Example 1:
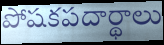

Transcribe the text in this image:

పోషకపదార్థాలు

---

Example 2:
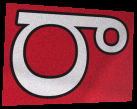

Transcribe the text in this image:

రా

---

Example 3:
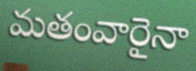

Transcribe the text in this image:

మతంవారైనా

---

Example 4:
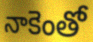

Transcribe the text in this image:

నాకెంతో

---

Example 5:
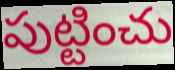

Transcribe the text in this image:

పుట్టించు